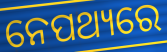
ନେପଥ୍ୟରେ